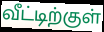
வீட்டிற்குள்